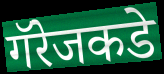
गॅरेजकडे